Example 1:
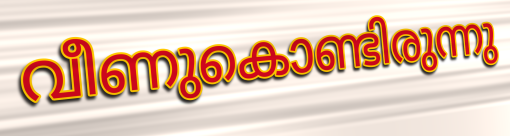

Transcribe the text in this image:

വീണുകൊണ്ടിരുന്നു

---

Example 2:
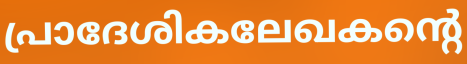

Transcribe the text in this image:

പ്രാദേശികലേഖകന്റെ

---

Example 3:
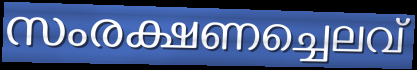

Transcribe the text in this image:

സംരക്ഷണച്ചെലവ്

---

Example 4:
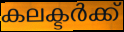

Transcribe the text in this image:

കലക്ടർക്ക്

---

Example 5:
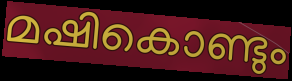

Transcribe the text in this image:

മഷികൊണ്ടും